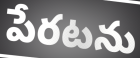
పేరటను